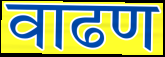
वाढण